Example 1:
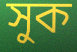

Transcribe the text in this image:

সুক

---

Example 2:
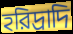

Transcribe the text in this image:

হরিদ্রাদি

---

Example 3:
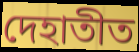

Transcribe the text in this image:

দেহাতীত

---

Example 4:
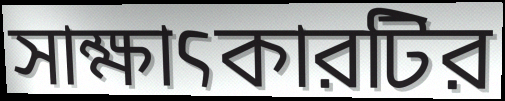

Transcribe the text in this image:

সাক্ষাৎকারটির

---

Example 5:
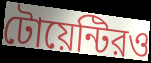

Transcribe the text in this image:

টোয়েন্টিরও